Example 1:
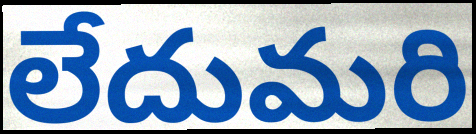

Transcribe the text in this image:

లేదుమరి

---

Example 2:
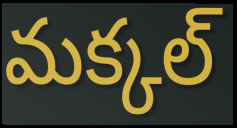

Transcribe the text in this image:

మక్కల్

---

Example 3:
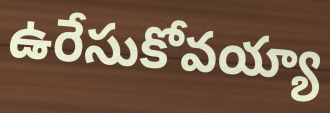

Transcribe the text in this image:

ఉరేసుకోవయ్యా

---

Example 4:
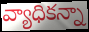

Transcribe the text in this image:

వ్యాధికన్నా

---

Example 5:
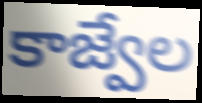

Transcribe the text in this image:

కాజ్వేల